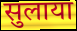
सुलाया